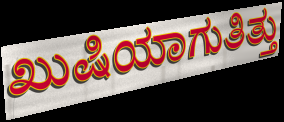
ಖುಷಿಯಾಗುತಿತ್ತು